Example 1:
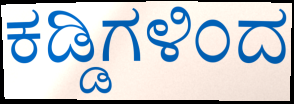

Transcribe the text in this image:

ಕಡ್ಡಿಗಳಿಂದ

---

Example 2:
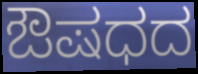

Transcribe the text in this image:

ಔಷಧದ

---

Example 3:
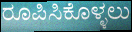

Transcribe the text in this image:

ರೂಪಿಸಿಕೊಳ್ಳಲು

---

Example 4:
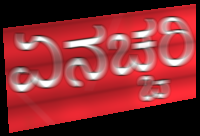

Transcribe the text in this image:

ಏನಚ್ಚರಿ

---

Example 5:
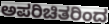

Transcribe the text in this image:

ಅಪರಿಚಿತರಿಂದ